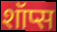
शॉप्स